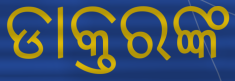
ଡାକ୍ତରଙ୍କ